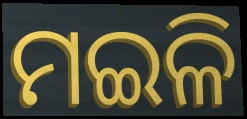
ମଇଳି